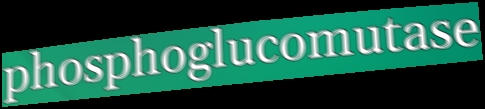
phosphoglucomutase